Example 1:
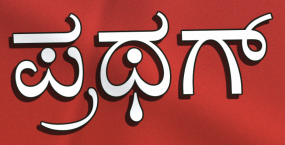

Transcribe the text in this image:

ಪ್ರಥಗ್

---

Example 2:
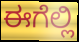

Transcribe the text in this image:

ಈಗೆಲ್ಲಿ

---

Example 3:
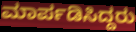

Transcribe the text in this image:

ಮಾರ್ಪಡಿಸಿದ್ದರು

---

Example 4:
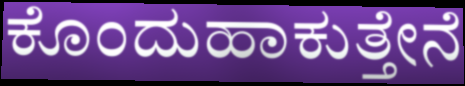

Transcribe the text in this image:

ಕೊಂದುಹಾಕುತ್ತೇನೆ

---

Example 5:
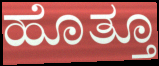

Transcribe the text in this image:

ಹೊತ್ತೂ